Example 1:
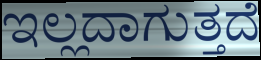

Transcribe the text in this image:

ಇಲ್ಲದಾಗುತ್ತದೆ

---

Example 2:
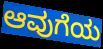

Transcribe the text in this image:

ಆವುಗೆಯ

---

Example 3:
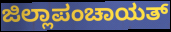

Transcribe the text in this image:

ಜಿಲ್ಲಾಪಂಚಾಯತ್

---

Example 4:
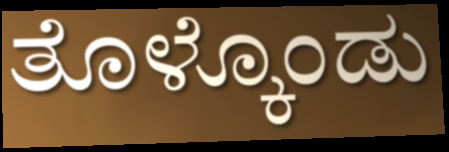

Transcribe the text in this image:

ತೊಳ್ಕೊಂಡು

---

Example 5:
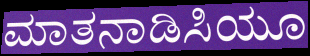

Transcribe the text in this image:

ಮಾತನಾಡಿಸಿಯೂ